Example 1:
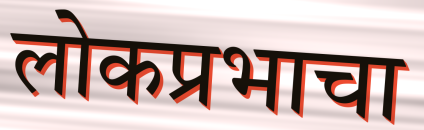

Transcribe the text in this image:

लोकप्रभाचा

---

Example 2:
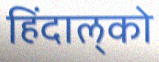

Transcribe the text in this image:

हिंदाल्को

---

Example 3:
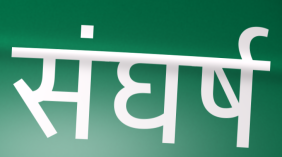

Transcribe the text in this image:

संघर्ष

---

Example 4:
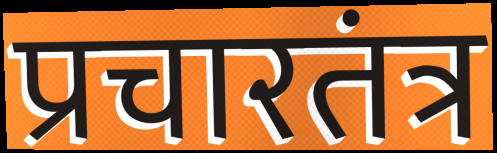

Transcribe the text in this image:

प्रचारतंत्र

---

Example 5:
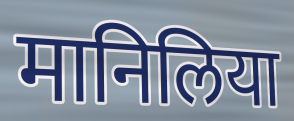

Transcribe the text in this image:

मानिलिया